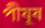
পীযূষ